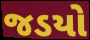
જડયો